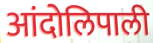
आंदोलिपाली